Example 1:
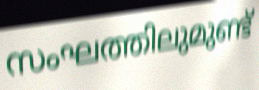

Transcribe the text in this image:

സംഘത്തിലുമുണ്ട്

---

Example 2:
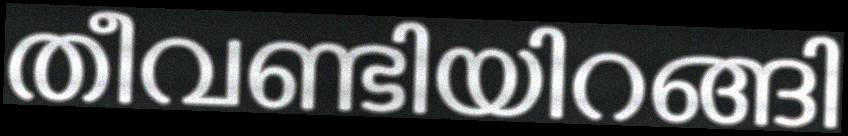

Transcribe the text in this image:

തീവണ്ടിയിറങ്ങി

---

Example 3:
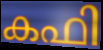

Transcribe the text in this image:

കഫി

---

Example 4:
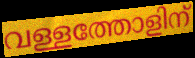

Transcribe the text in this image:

വള്ളത്തോളിന്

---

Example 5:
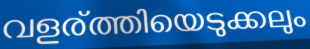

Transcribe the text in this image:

വളര്ത്തിയെടുക്കലും